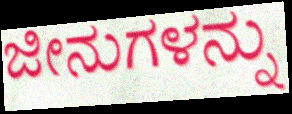
ಜೀನುಗಳನ್ನು